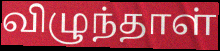
விழுந்தாள்